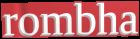
rombha